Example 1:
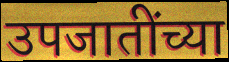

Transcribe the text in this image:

उपजातींच्या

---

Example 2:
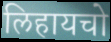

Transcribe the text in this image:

लिहायचो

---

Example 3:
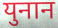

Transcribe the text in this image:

युनान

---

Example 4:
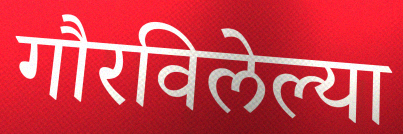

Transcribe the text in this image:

गौरविलेल्या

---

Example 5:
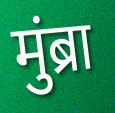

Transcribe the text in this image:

मुंब्रा